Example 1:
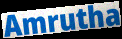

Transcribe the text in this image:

Amrutha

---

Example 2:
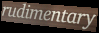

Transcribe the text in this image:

rudimentary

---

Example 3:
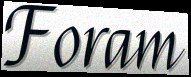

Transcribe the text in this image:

Foram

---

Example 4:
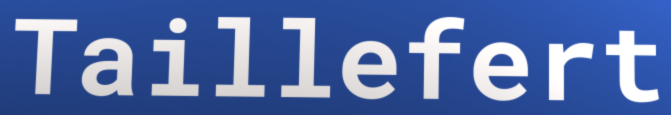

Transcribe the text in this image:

Taillefert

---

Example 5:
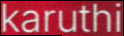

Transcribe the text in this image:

karuthi